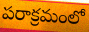
పరాక్రమంలో